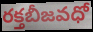
రక్తబీజవధో